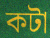
কটা